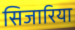
सिजारिया